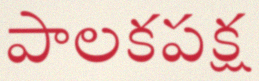
పాలకపక్ష